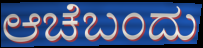
ಆಚೆಬಂದು